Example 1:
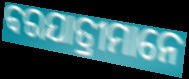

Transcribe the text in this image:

ବରଯାତ୍ରୀମାନେ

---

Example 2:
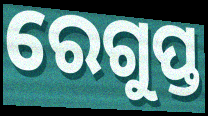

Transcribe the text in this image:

ରେଗୁପ୍ତ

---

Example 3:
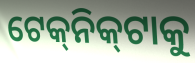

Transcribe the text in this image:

ଟେକ୍‌ନିକ୍‌ଟାକୁ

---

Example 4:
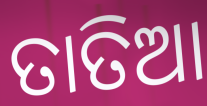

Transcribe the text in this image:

ତାତିଆ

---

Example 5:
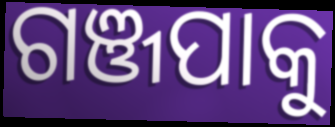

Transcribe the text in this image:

ଗଞ୍ଜପାକୁ